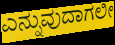
ಎನ್ನುವುದಾಗಲೀ